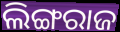
ଲିଙ୍ଗରାଜ